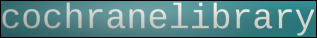
cochranelibrary